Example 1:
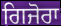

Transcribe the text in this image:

ਗਿਜੋਰਾ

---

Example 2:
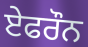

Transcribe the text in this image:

ਏਫਰੌਨ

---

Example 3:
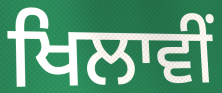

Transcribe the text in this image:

ਖਿਲਾਵੀਂ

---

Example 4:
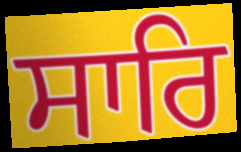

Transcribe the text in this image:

ਸਾਰਿ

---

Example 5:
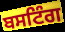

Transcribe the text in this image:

ਬਸਟਿੰਗ